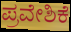
ಪ್ರವೇಶಿಕೆ